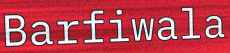
Barfiwala